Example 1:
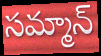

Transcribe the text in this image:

సమ్మాన్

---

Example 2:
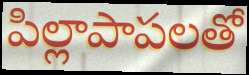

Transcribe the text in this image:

పిల్లాపాపలతో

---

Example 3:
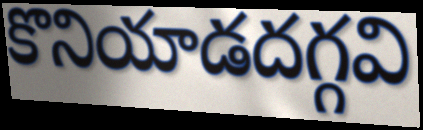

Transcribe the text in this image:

కొనియాడదగ్గవి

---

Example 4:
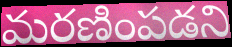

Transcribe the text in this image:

మరణింపడని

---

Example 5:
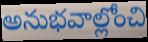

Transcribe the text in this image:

అనుభవాల్లోంచి